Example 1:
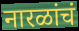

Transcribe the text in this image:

नारळांचं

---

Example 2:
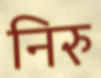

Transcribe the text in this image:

निरु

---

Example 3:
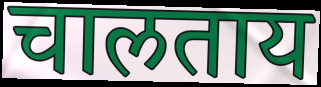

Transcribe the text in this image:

चालताय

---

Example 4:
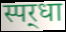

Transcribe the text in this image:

स्पर्धा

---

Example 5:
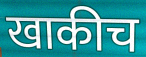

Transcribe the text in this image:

खाकीच